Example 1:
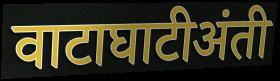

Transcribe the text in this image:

वाटाघाटीअंती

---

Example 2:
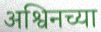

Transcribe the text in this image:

अश्विनच्या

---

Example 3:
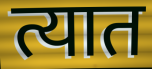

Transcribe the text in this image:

त्यात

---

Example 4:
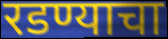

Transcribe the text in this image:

रडण्याचा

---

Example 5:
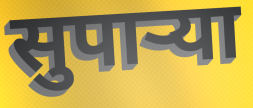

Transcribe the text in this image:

सुपार्‍या